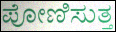
ಪೋಣಿಸುತ್ತ